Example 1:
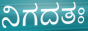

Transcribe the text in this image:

ನಿಗದತಃ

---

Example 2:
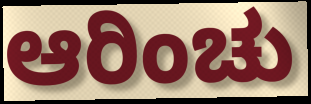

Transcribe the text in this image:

ಆರಿಂಚು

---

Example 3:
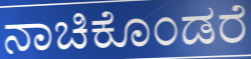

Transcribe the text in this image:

ನಾಚಿಕೊಂಡರೆ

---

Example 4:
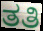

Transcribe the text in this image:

ತತಿ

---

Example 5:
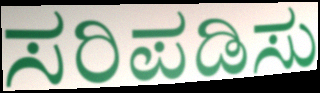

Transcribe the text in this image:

ಸರಿಪಡಿಸು